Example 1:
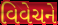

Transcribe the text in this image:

વિવેચને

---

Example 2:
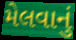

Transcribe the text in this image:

મેલવાનું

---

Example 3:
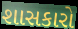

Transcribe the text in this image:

શાસકારો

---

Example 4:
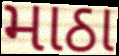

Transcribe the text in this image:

માઠા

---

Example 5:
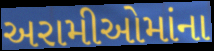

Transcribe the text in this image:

અરામીઓમાંના